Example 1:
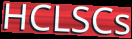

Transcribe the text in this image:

HCLSCs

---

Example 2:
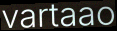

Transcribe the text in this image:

vartaao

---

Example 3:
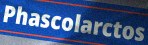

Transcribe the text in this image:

Phascolarctos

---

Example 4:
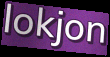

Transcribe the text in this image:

lokjon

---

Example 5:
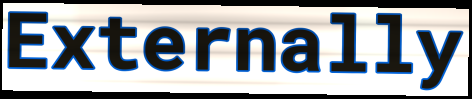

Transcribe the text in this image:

Externally